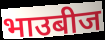
भाउबीज